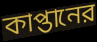
কাপ্তানের